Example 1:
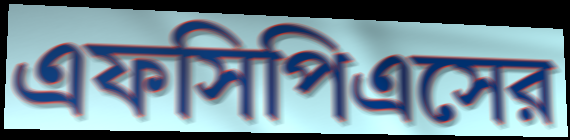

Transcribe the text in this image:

এফসিপিএসের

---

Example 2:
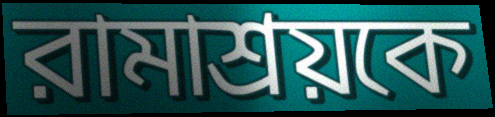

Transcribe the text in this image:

রামাশ্রয়কে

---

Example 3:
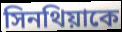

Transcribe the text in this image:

সিনথিয়াকে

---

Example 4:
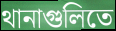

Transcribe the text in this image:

থানাগুলিতে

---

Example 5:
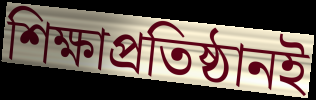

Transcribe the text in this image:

শিক্ষাপ্রতিষ্ঠানই